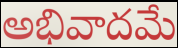
అభివాదమే